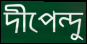
দীপেন্দু